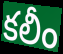
కలీం